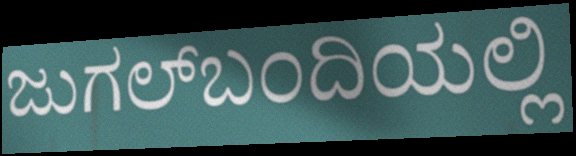
ಜುಗಲ್‌ಬಂದಿಯಲ್ಲಿ